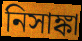
নিসাঙ্কা